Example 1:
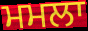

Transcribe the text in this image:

ਮਮਲਾ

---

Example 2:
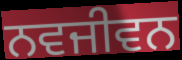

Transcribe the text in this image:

ਨਵਜੀਵਨ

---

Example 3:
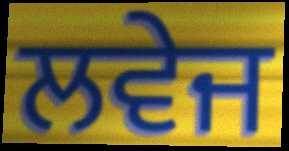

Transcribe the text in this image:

ਲਵੇਜ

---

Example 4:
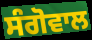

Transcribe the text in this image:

ਸੰਗੋਵਾਲ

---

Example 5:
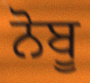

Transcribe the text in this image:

ਨੋਬੂ